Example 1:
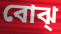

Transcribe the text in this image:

বোঝ্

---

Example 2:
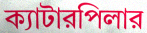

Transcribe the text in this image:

ক্যাটারপিলার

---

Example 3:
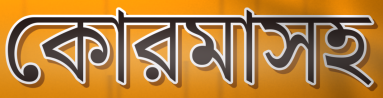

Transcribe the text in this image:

কোরমাসহ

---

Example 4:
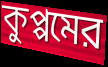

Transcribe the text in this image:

কুপ্পমের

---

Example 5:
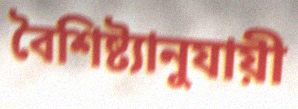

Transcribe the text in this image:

বৈশিষ্ট্যানুযায়ী